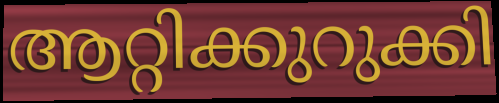
ആറ്റിക്കുറുക്കി